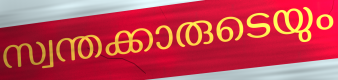
സ്വന്തക്കാരുടെയും